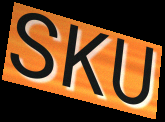
SKU